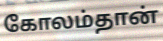
கோலம்தான்